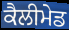
ਕੈਲੀਮੇਡ